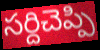
సర్దిచెప్పి